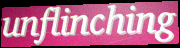
unflinching